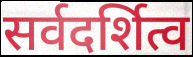
सर्वदर्शित्व